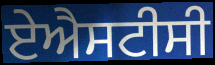
ਏਐਸਟੀਸੀ